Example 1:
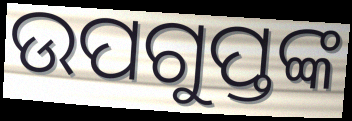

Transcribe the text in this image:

ଉପଗୁପ୍ତଙ୍କ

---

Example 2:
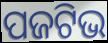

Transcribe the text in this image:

ପଜଟିଭ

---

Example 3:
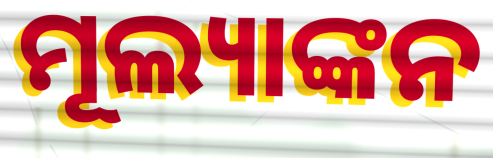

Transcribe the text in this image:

ମୂଲ୍ୟାଙ୍କନ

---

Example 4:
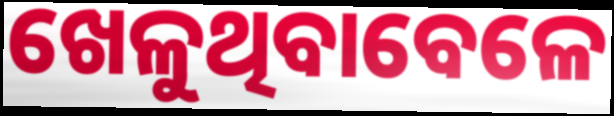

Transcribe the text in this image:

ଖେଳୁଥିବାବେଳେ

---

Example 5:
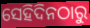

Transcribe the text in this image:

ସେହିଦିନଠାରୁ